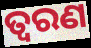
ତ୍ୱରଣ